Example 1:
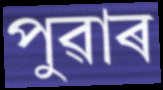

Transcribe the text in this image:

পুৱাৰ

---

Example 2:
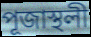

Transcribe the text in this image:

পূজাস্থলী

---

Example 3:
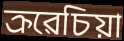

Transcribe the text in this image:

ক্ৰৱেচিয়া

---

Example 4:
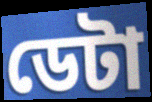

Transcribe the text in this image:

ডেটা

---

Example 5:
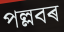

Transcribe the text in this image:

পল্লবৰ